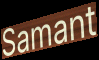
Samant